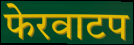
फेरवाटप